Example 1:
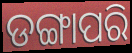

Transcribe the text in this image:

ଡଙ୍ଗାପରି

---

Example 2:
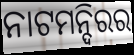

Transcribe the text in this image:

ନାଟମନ୍ଦିରର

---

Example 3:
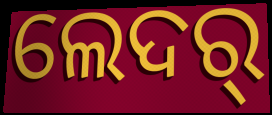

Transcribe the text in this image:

ଲେଦର୍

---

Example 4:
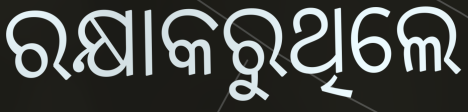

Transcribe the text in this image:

ରକ୍ଷାକରୁଥିଲେ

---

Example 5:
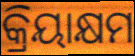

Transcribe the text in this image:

କ୍ରିୟାକ୍ଷମ